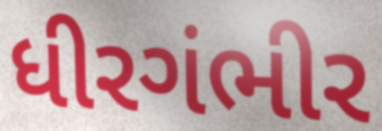
ધીરગંભીર